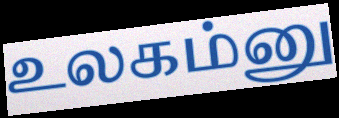
உலகம்னு